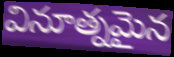
వినూత్నమైన